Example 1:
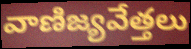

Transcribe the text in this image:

వాణిజ్యవేత్తలు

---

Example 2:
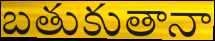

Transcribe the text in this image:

బతుకుతానా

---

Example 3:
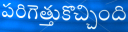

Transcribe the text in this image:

పరిగెత్తుకొచ్చింది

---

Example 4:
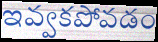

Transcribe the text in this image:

ఇవ్వకపోవడం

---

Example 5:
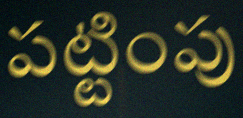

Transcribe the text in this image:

పట్టింపు